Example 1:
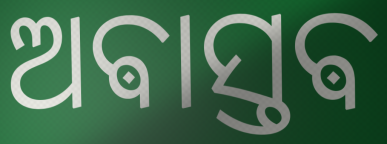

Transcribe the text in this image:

ଅଵାସ୍ତଵ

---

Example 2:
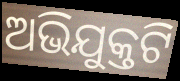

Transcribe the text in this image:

ଅଭିଯୁକ୍ତଟି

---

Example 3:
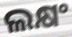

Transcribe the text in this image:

ଲକ୍ଷଂ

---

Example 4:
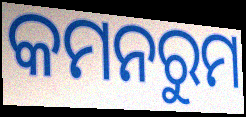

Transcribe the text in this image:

କମନରୁମ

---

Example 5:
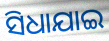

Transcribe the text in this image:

ସିଧାଯାଇ